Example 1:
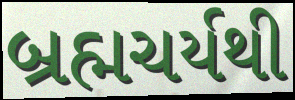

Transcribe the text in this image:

બ્રહ્મચર્યથી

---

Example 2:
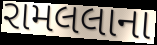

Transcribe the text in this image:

રામલલાના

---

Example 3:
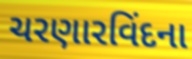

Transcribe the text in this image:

ચરણારવિંદના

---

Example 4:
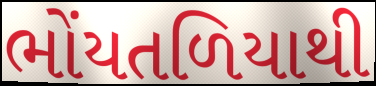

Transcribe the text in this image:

ભોંયતળિયાથી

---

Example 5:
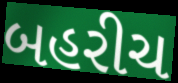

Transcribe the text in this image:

બહરીચ